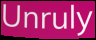
Unruly